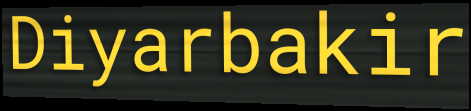
Diyarbakir